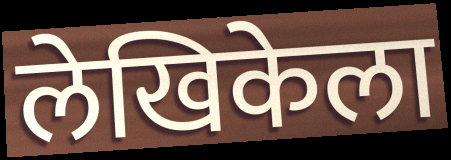
लेखिकेला